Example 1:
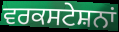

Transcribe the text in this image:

ਵਰਕਸਟੇਸ਼ਨਾਂ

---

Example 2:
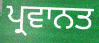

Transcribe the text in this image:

ਪ੍ਰਵਾਨਤ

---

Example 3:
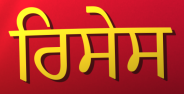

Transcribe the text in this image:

ਰਿਸੇਸ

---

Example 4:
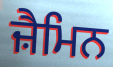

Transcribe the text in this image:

ਜ਼ੈਮਿਨ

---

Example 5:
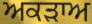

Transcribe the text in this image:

ਅਕੜਾਅ